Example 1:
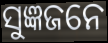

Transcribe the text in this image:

ସୁଜ୍ଞଜନେ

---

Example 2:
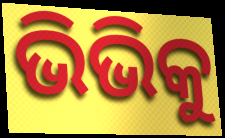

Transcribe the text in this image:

ଭିଭିକୁ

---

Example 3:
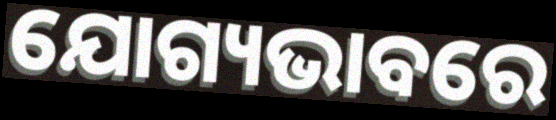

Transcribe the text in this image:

ଯୋଗ୍ୟଭାବରେ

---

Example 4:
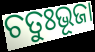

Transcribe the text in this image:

ଚତୁଃଭୂଜା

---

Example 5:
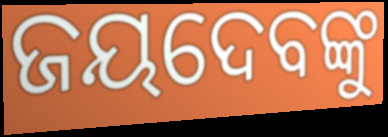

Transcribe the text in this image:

ଜୟଦେବଙ୍କୁ